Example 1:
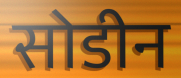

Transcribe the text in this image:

सोडीन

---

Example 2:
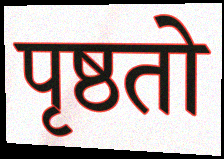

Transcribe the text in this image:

पृष्ठतो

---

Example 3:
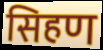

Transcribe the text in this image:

सिहण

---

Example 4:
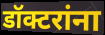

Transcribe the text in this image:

डॉक्टरांना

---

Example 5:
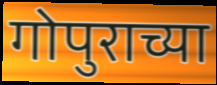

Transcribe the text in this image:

गोपुराच्या